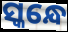
ସ୍କନ୍ଧେ